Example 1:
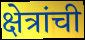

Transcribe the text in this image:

क्षेत्रांची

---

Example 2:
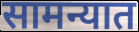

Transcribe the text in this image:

सामन्यात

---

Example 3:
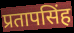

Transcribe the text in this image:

प्रतापसिंह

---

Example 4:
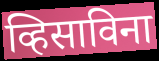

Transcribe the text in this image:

व्हिसाविना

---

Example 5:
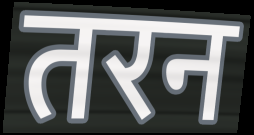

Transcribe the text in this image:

तरन